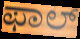
ಫಾಲ್